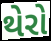
થેરો